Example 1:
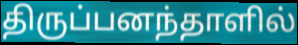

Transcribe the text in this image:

திருப்பனந்தாளில்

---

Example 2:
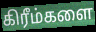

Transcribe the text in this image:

கிரீம்களை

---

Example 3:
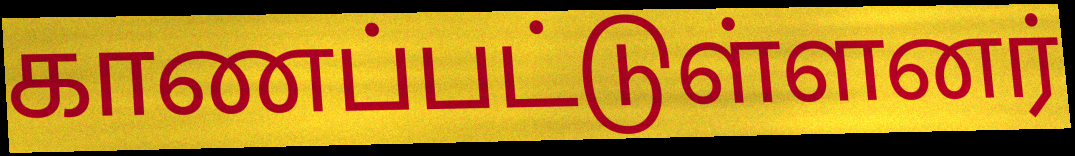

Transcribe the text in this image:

காணப்பட்டுள்ளனர்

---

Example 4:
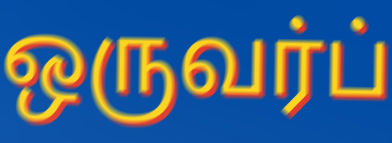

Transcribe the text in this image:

ஒருவர்ப்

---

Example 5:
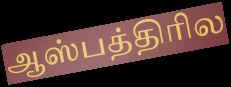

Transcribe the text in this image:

ஆஸ்பத்திரில